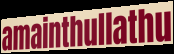
amainthullathu